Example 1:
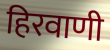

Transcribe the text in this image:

हिरवाणी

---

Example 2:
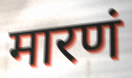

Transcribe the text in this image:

मारणं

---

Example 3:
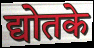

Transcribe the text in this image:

द्योतके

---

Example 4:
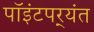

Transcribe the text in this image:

पॉइंटपर्यंत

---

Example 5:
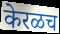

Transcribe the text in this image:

केरळच